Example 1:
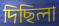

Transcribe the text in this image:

দিছিলা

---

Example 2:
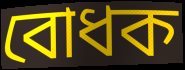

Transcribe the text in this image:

বোধক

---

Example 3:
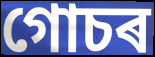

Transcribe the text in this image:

গোচৰ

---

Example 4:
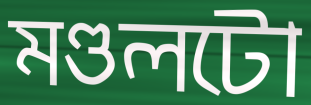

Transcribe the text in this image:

মণ্ডলটো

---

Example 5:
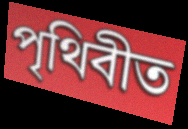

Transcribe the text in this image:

পৃথিবীত